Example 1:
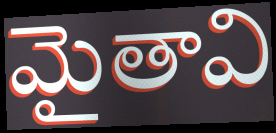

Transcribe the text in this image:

మైతావి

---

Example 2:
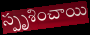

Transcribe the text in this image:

స్పృశించాయి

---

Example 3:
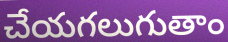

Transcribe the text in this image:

చేయగలుగుతాం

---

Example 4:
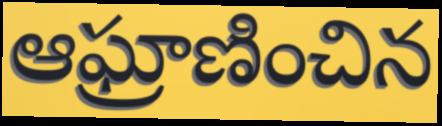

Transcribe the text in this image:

ఆఘ్రాణించిన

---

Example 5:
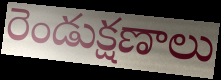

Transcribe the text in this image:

రెండుక్షణాలు